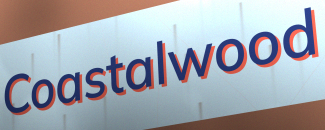
Coastalwood